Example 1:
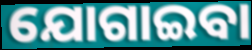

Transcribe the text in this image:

ଯୋଗାଇବା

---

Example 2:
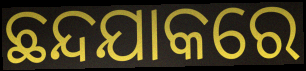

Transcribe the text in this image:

ଛନ୍ଦଯାକରେ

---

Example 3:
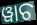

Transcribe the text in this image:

ୱାଚ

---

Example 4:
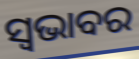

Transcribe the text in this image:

ସ୍ଵଭାବର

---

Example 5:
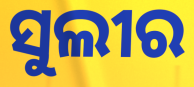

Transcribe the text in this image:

ସୁଲୀର